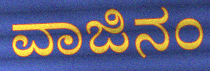
ವಾಜಿನಂ